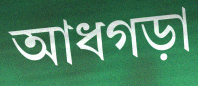
আধগড়া